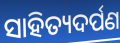
ସାହିତ୍ୟଦର୍ପଣ